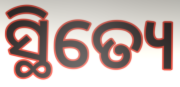
ସ୍ଥିତ୍ୟେ